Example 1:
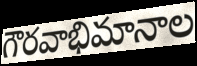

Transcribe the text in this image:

గౌరవాభిమానాల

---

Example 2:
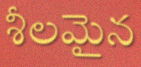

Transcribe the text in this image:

శీలమైన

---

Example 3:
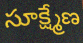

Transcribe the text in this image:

సూక్ష్మేణ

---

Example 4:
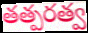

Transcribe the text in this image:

తత్పరత్వ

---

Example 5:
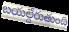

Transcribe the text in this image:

బయల్దేరుతుంది